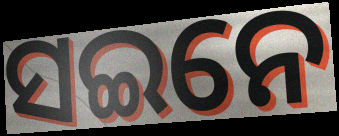
ସଇନେ